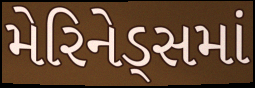
મેરિનેડ્સમાં